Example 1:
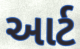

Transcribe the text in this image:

આર્ટ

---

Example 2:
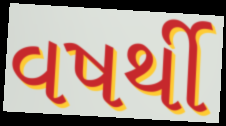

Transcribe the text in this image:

વષર્થી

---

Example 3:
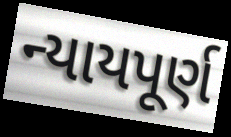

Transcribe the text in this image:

ન્યાયપૂર્ણ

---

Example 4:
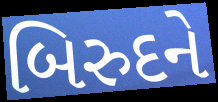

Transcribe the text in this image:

બિરુદને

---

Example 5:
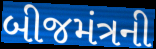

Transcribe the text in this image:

બીજમંત્રની